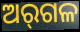
ଅର୍‌ଗଳ